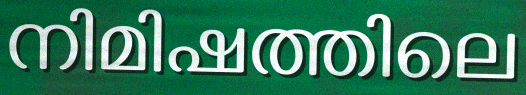
നിമിഷത്തിലെ